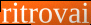
ritrovai